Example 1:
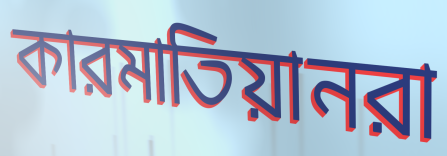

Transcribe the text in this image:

কারমাতিয়ানরা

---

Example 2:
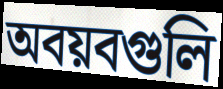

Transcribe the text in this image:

অবয়বগুলি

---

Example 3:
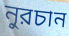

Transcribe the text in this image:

নুরচান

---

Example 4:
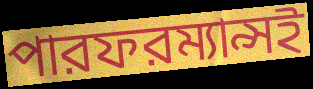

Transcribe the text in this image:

পারফরম্যান্সই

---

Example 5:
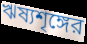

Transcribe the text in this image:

ঋষ্যশৃঙ্গের